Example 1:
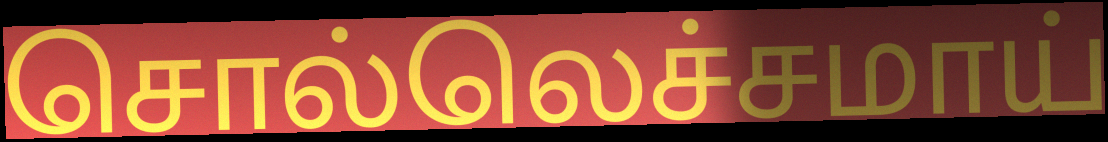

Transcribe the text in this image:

சொல்லெச்சமாய்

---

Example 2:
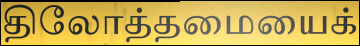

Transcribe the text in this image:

திலோத்தமையைக்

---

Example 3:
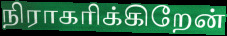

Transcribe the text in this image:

நிராகரிக்கிறேன்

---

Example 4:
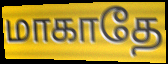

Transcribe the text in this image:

மாகாதே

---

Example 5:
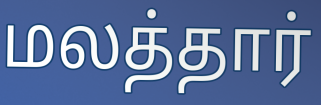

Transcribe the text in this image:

மலத்தார்